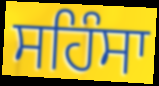
ਸਹਿੰਸਾ